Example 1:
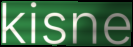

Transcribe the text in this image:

kisne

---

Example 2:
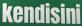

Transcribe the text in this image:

kendisini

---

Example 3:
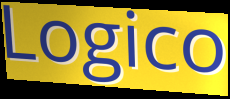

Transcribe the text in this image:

Logico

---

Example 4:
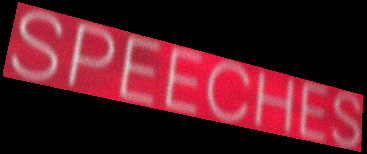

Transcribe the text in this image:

SPEECHES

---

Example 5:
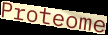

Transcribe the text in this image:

Proteome